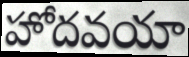
హోదవయా